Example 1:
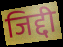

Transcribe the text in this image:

जिद्दी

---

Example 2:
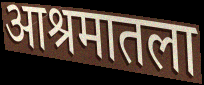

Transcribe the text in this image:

आश्रमातला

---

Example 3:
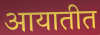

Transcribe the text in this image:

आयातीत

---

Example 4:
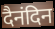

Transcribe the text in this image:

दैनंदिन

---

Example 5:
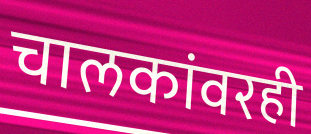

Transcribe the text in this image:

चालकांवरही